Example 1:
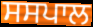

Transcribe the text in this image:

ਸਸਪਾਲ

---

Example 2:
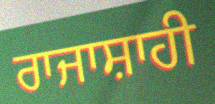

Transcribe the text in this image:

ਰਾਜਾਸ਼ਾਹੀ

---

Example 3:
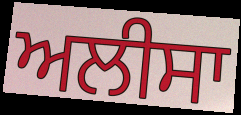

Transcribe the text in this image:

ਅਲੀਸਾ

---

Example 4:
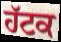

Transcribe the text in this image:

ਹੱਟਕ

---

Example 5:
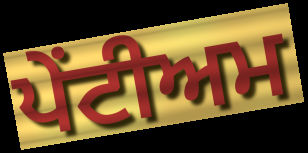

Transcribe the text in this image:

ਪੇਂਟੀਅਮ